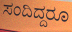
ಸಂದಿದ್ದರೂ